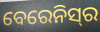
ବେରେନିସ୍‌ର